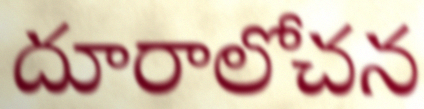
దూరాలోచన